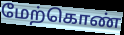
மேற்கொண்